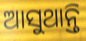
ଆସୁଥାନ୍ତି